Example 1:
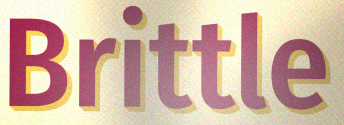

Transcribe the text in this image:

Brittle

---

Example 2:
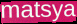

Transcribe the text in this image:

matsya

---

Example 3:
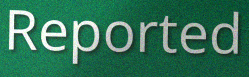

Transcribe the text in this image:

Reported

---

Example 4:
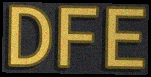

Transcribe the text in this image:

DFE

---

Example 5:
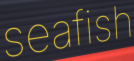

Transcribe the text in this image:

seafish